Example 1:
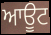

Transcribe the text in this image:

ਆਊਟ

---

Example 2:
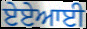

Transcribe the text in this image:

ਏਏਆਈ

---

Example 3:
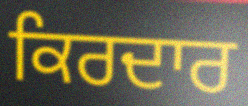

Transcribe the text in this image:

ਕਿਰਦਾਰ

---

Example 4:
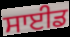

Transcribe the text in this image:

ਸਾਈਡ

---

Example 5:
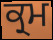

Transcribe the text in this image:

ਕ੍ਰਮ